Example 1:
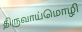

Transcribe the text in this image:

திருவாய்மொழி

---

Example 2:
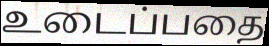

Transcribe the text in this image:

உடைப்பதை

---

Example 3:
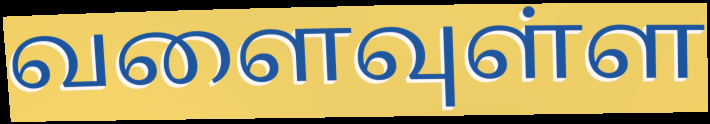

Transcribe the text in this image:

வளைவுள்ள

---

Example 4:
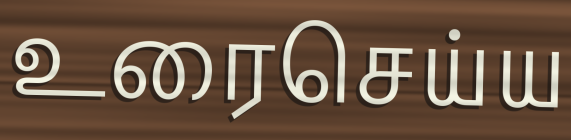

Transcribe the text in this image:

உரைசெய்ய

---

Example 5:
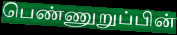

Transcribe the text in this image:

பெண்ணுறுப்பின்